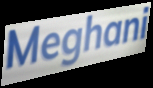
Meghani